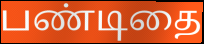
பண்டிதை